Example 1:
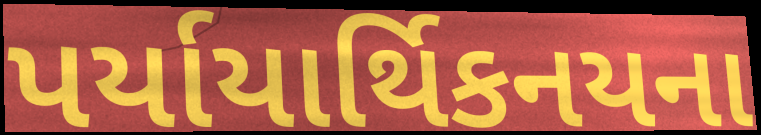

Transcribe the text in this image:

પર્યાયાર્થિકનયના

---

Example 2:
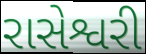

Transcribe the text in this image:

રાસેશ્વરી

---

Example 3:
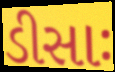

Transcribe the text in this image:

ડીસાઃ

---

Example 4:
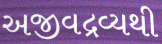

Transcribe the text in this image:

અજીવદ્રવ્યથી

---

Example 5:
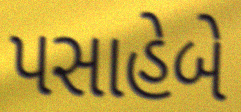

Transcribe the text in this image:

પસાહેબે